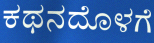
ಕಥನದೊಳಗೆ